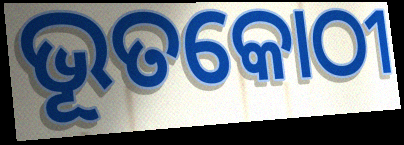
ଭୂତକୋଠୀ